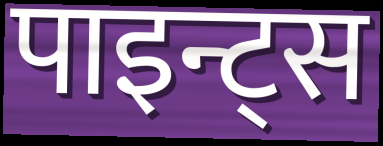
पाइन्ट्स